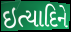
ઇત્‍યાદિને